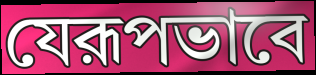
যেরূপভাবে